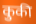
कुकी